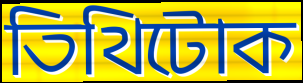
তিথিটোক